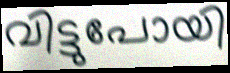
വിട്ടുപോയി